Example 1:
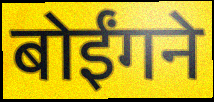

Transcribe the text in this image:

बोईंगने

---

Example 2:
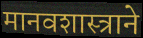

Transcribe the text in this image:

मानवशास्त्राने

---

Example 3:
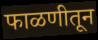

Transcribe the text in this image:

फाळणीतून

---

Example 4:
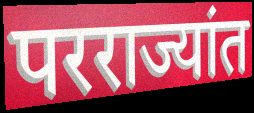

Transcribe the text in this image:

परराज्यांत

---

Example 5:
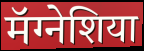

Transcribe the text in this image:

मॅग्‍नेशिया